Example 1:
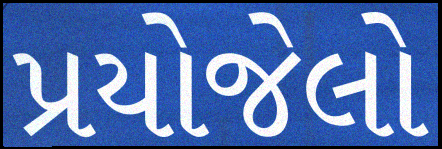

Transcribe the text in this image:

પ્રયોજેલો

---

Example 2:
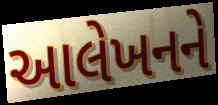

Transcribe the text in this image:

આલેખનને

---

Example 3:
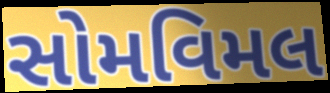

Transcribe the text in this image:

સોમવિમલ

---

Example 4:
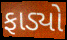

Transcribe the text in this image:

ફાડ્યો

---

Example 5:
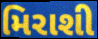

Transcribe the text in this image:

મિરાશી